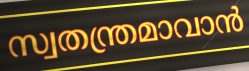
സ്വതന്ത്രമാവാൻ